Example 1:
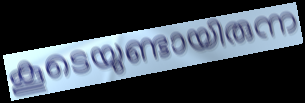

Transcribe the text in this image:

കൂടെയുണ്ടായിരുന്ന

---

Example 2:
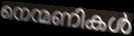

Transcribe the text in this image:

നെന്മണികൾ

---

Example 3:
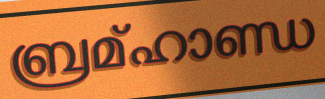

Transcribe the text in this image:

ബ്രമ്ഹാണ്ഡ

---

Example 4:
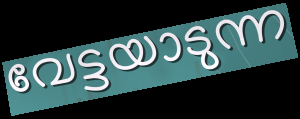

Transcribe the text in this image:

വേട്ടയാടുന്ന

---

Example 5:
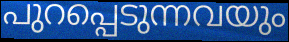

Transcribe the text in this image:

പുറപ്പെടുന്നവയും